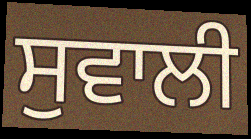
ਸੁਵਾਲੀ